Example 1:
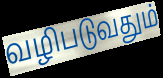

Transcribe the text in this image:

வழிபடுவதும்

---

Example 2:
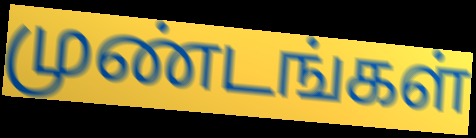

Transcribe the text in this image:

முண்டங்கள்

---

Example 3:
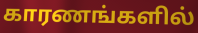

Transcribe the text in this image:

காரணங்களில்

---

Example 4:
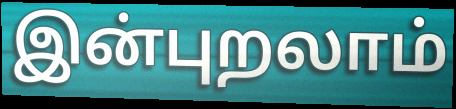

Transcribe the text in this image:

இன்புறலாம்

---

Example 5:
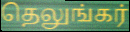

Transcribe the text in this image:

தெலுங்கர்